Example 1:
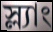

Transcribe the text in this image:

স্ল্যাং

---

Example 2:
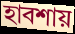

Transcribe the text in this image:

হাবশায়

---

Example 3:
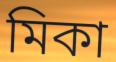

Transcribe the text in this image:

মিকা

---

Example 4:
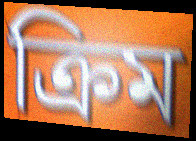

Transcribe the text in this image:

ক্রিম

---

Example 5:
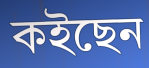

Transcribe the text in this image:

কইছেন